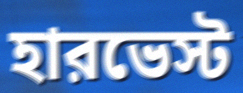
হারভেস্ট